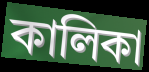
কালিকা